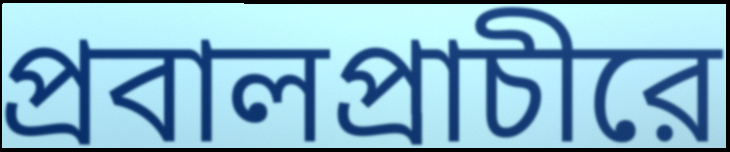
প্রবালপ্রাচীরে